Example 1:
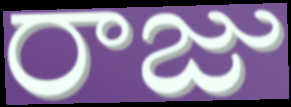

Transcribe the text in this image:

రాజు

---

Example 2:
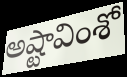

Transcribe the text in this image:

అష్టావింశో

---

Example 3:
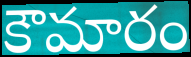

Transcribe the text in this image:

కౌమారం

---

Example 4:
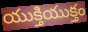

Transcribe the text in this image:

యుక్తియుక్తం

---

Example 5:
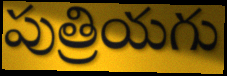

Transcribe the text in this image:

పుత్రియగు